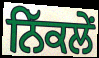
ਨਿੱਕਲੇਂ